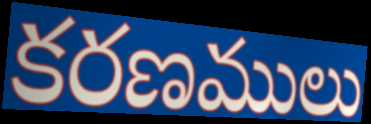
కరణములు